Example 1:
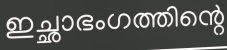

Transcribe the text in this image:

ഇച്ഛാഭംഗത്തിന്റെ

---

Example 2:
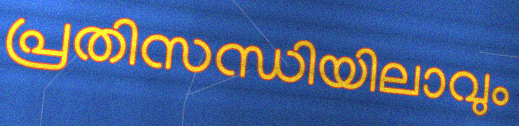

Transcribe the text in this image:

പ്രതിസന്ധിയിലാവും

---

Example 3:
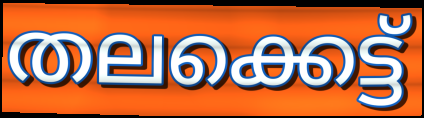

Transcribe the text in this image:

തലക്കെട്ട്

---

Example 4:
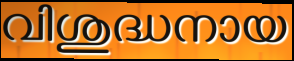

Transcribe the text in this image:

വിശുദ്ധനായ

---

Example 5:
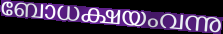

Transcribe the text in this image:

ബോധക്ഷയംവന്നു